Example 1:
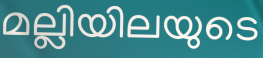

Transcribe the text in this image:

മല്ലിയിലയുടെ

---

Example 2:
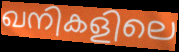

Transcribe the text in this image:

ഖനികളിലെ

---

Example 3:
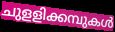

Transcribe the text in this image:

ചുളളിക്കമ്പുകൾ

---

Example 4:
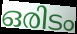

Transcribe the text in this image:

ഒരിടം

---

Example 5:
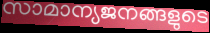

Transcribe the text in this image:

സാമാന്യജനങ്ങളുടെ